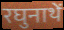
रघुनाथें